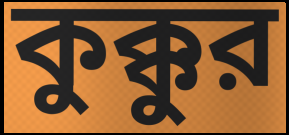
কুক্কুর